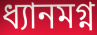
ধ্যানমগ্ন